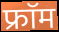
फ्रॉम